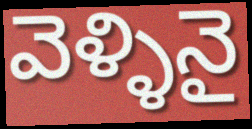
వెళ్ళినై